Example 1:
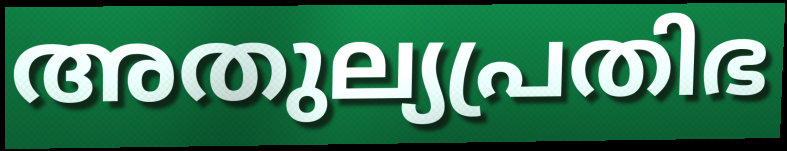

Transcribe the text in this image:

അതുല്യപ്രതിഭ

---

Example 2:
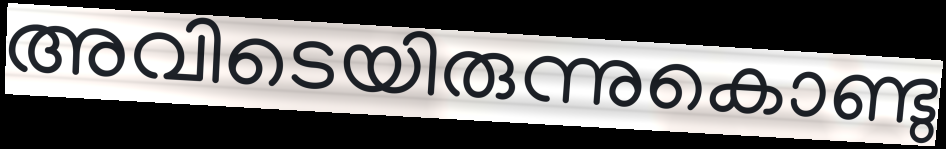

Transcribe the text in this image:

അവിടെയിരുന്നുകൊണ്ടു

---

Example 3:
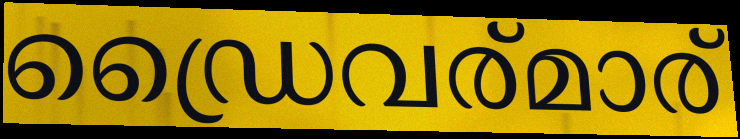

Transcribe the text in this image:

ഡ്രൈവര്മാര്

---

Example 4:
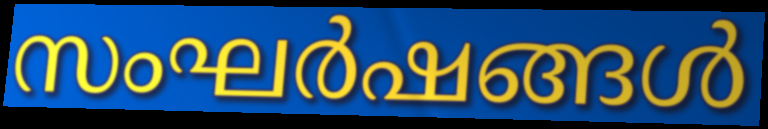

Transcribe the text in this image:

സംഘർഷങ്ങൾ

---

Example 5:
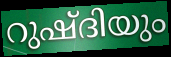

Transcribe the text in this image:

റുഷ്ദിയും